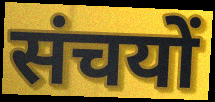
संचयों